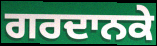
ਗਰਦਾਨਕੇ